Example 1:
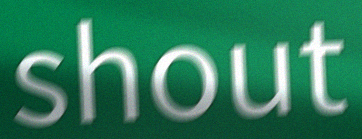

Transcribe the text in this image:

shout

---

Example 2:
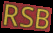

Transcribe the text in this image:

RSB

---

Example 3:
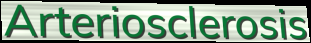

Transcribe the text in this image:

Arteriosclerosis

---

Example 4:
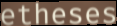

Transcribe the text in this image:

etheses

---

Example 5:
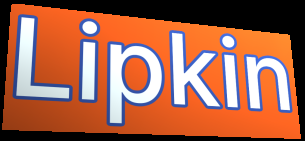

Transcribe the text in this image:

Lipkin